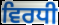
ਵਿਰਧੀ